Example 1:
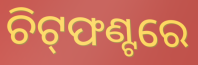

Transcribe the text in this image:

ଚିଟ୍‌ଫଣ୍ଟରେ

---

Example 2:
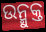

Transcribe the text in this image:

ଉନ୍ମୁକ୍ତ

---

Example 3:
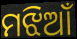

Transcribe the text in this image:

ମଝିଆଁ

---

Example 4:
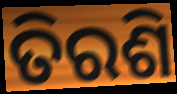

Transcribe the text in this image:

ତିରଶି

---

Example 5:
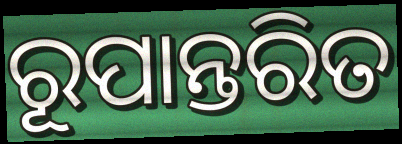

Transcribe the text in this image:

ରୂପାନ୍ତରିତ